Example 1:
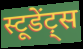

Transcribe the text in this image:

स्टूडेंट़्स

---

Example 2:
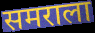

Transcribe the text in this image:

समराला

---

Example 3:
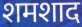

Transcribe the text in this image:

शमशाद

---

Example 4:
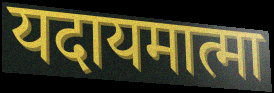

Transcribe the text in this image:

यदायमात्मा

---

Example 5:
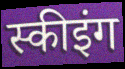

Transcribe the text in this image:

स्कीइंग